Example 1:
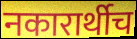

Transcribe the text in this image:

नकारार्थीच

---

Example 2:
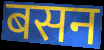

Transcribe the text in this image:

बसन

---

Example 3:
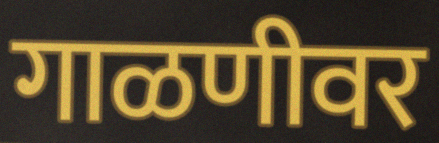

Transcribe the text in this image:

गाळणीवर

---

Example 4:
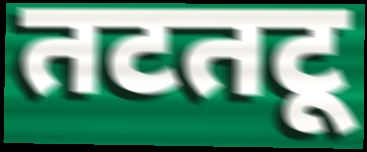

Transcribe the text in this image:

तटतटू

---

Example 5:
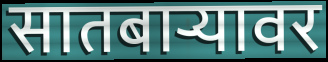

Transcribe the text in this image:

सातबाऱ्यावर